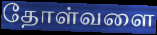
தோள்வளை